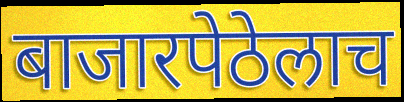
बाजारपेठेलाच